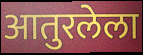
आतुरलेला